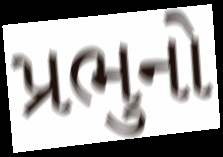
પ્રભુનો